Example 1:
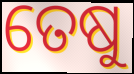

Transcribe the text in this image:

ତେଷୁ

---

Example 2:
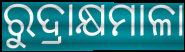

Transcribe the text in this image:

ରୁଦ୍ରାକ୍ଷମାଳା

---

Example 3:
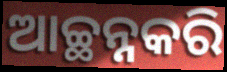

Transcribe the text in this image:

ଆଚ୍ଛନ୍ନକରି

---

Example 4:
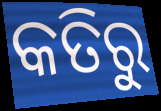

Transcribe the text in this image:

କତିରୁ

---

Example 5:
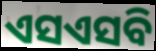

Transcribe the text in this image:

ଏସଏସବି